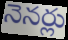
నెనర్లు